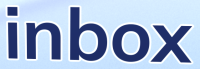
inbox